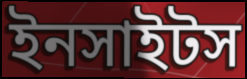
ইনসাইটস